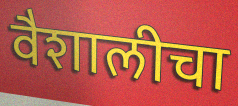
वैशालीचा